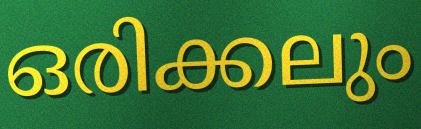
ഒരിക്കലും